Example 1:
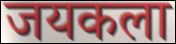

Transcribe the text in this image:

जयकला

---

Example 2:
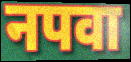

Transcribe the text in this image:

नपवा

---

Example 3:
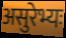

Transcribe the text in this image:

असुरेभ्यः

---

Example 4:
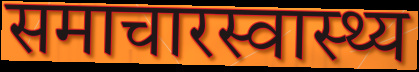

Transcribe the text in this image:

समाचारस्वास्थ्य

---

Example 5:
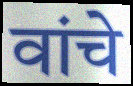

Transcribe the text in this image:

वांचे